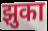
झुका